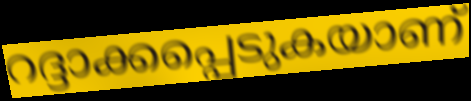
റദ്ദാക്കപ്പെടുകയാണ്